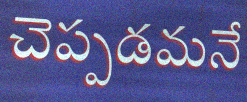
చెప్పడమనే